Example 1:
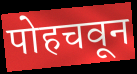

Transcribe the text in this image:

पोहचवून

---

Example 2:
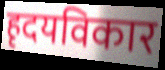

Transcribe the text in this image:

हृदयविकार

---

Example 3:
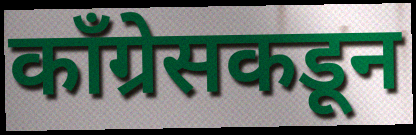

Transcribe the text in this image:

काँग्रेसकडून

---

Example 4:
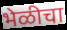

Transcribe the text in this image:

भेळीचा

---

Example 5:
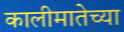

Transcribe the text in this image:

कालीमातेच्या